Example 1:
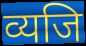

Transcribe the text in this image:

व्यजि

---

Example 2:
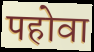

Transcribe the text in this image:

पहोवा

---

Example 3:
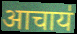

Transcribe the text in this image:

आचाय॑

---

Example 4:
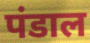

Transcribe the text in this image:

पंडाल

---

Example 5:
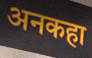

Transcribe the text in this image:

अनकहा